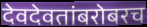
देवदेवतांबरोबरच